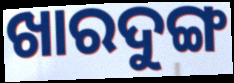
ଖାରଦୁଙ୍ଗ